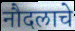
नौदलाचे